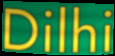
Dilhi